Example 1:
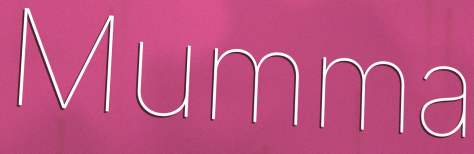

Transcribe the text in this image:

Mumma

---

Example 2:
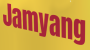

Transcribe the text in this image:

Jamyang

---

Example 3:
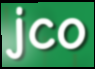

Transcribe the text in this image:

jco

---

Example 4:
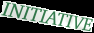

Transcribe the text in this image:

INITIATIVE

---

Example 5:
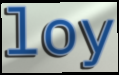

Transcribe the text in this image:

loy